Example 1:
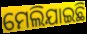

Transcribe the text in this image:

ମେଲିଯାଇଛି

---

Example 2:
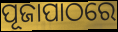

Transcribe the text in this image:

ପୂଜାପାଠରେ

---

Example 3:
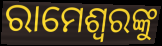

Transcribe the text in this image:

ରାମେଶ୍ୱରଙ୍କୁ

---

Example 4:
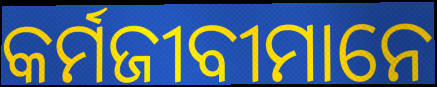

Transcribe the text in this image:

କର୍ମଜୀବୀମାନେ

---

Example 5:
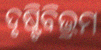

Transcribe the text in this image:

ଦୃଷ୍ଟିବିଭ୍ରମ